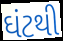
ઘંટથી